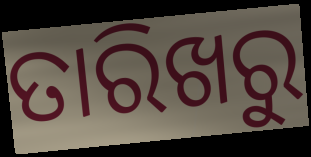
ତାରିଖରୁ